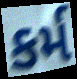
કર્મ